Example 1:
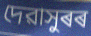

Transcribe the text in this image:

দেৱাসুৰৰ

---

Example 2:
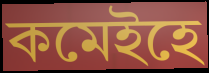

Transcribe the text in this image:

কমেইহে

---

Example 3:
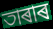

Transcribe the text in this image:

তাৰাৰ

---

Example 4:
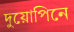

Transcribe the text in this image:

দুয়োপিনে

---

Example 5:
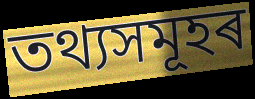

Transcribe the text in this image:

তথ্যসমূহৰ